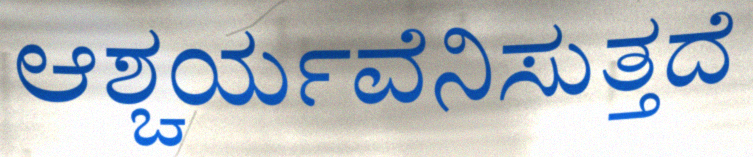
ಆಶ್ಚರ್ಯವೆನಿಸುತ್ತದೆ